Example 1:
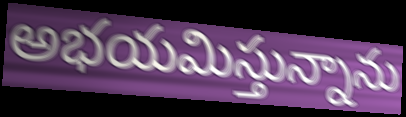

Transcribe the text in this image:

అభయమిస్తున్నాను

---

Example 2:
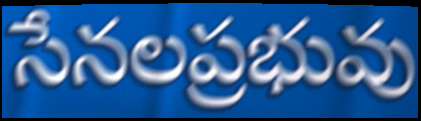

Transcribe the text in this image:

సేనలప్రభువు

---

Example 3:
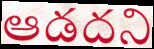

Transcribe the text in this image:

ఆడదని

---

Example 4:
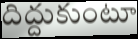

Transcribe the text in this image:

దిద్దుకుంటూ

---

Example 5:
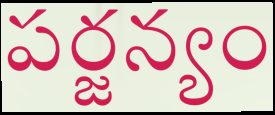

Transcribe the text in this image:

పర్జన్యం